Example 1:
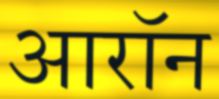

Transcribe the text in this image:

आरॉन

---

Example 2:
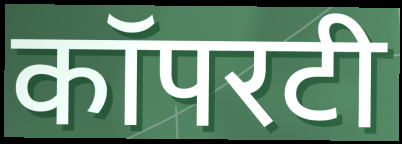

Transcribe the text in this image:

कॉपरटी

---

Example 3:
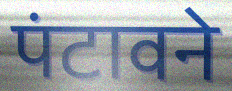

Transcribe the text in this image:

पंटावने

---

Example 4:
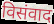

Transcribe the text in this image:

विसंवाद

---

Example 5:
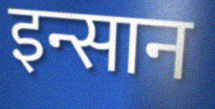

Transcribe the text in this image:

इन्सान